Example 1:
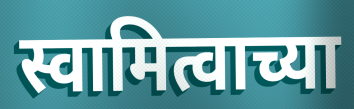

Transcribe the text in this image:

स्वामित्वाच्या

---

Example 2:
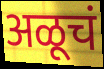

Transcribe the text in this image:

अळूचं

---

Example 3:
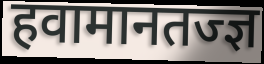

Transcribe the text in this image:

हवामानतज्ज्ञ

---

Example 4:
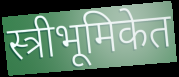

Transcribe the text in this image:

स्त्रीभूमिकेत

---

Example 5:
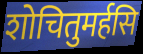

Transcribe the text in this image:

शोचितुमर्हसि